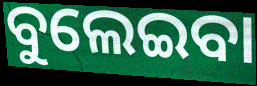
ବୁଲେଇବା